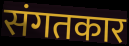
संगतकार